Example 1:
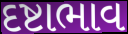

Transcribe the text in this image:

દષ્ટાભાવ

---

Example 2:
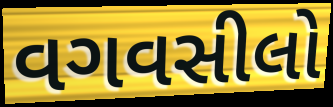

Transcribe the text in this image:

વગવસીલો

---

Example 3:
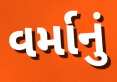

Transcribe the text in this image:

વર્માનું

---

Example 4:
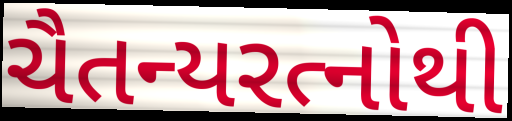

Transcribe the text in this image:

ચૈતન્યરત્નોથી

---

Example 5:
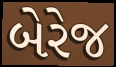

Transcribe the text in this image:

બેરેજ